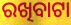
ରଖିବାଟା